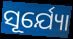
ସୂର୍ଯ୍ୟୋ